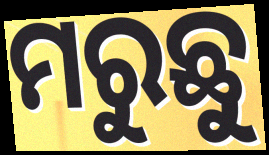
ମରୁଛୁ